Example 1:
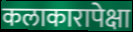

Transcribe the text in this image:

कलाकारापेक्षा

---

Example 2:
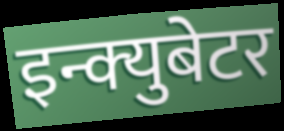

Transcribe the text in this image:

इन्क्‍युबेटर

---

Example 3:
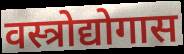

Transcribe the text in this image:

वस्त्रोद्योगास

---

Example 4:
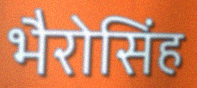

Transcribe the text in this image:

भैरोसिंह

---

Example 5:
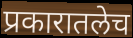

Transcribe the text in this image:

प्रकारातलेच